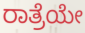
ರಾತ್ರೆಯೇ